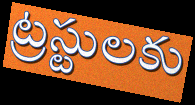
ట్రస్టులకు